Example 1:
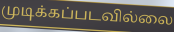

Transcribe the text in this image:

முடிக்கப்படவில்லை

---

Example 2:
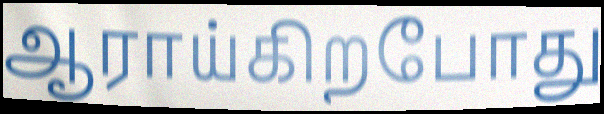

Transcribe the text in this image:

ஆராய்கிறபோது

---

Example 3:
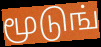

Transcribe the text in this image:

மூடுங்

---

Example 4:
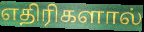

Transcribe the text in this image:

எதிரிகளால்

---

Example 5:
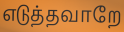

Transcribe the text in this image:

எடுத்தவாறே